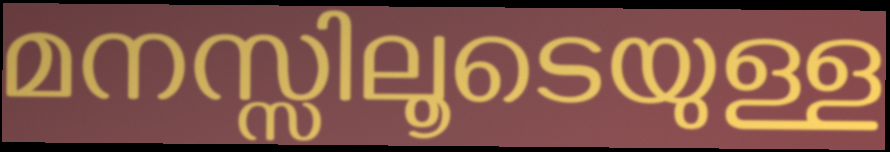
മനസ്സിലൂടെയുള്ള